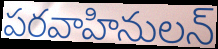
పరవాహినులన్